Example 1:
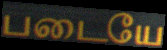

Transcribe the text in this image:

படையே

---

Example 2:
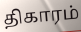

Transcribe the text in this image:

திகாரம்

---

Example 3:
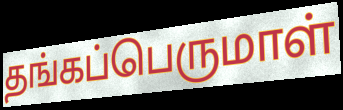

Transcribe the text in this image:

தங்கப்பெருமாள்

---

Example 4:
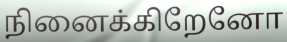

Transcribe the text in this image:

நினைக்கிறேனோ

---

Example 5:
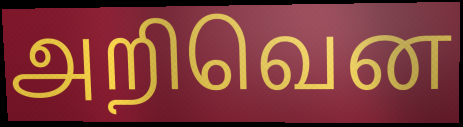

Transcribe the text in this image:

அறிவென